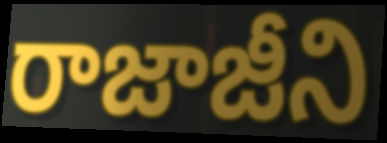
రాజాజీని